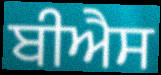
ਬੀਐਸ